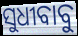
ସୁଧୀବାବୁ